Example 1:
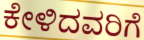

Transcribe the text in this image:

ಕೇಳಿದವರಿಗೆ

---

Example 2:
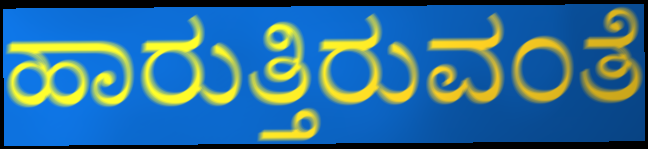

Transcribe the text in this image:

ಹಾರುತ್ತಿರುವಂತೆ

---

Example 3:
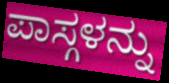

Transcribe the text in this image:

ಪಾಸ್ಗಳನ್ನು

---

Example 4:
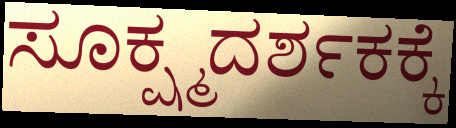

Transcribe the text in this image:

ಸೂಕ್ಷ್ಮದರ್ಶಕಕ್ಕೆ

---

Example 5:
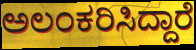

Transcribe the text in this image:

ಅಲಂಕರಿಸಿದ್ದಾರೆ